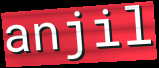
anjil